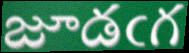
జూడఁగ